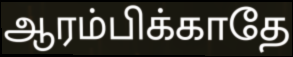
ஆரம்பிக்காதே